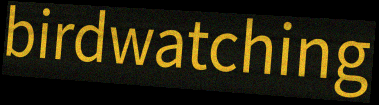
birdwatching